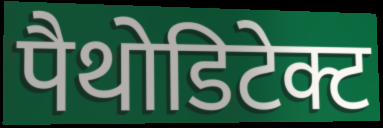
पैथोडिटेक्ट